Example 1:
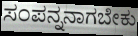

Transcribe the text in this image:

ಸಂಪನ್ನನಾಗಬೇಕು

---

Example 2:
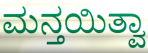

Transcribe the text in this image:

ಮನ್ತಯಿತ್ವಾ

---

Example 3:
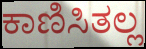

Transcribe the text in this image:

ಕಾಣಿಸಿತಲ್ಲ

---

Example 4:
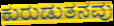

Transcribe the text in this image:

ಕುರುಡುತನವು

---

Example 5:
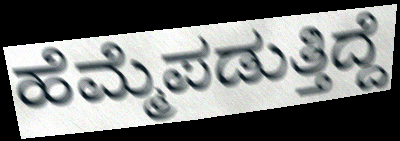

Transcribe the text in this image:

ಹೆಮ್ಮೆಪಡುತ್ತಿದ್ದೆ